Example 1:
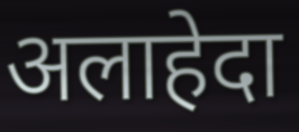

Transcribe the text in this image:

अलाहेदा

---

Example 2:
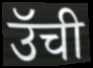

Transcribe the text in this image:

उॅची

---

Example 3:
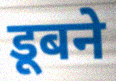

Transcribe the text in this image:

डूबने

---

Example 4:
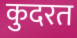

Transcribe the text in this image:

कुदरत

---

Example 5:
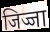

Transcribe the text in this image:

जिज्जा